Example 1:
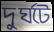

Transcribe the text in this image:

দুর্ঘটে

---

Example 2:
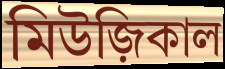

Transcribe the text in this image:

মিউজ়িকাল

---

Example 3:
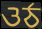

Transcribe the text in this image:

ওঠ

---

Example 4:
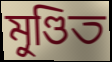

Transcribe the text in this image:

মুণ্ডিত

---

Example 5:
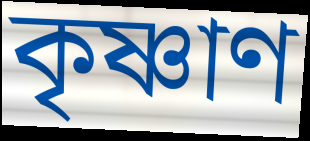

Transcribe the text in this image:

কৃষ্ণাণ